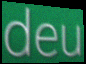
deu